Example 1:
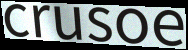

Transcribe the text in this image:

crusoe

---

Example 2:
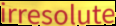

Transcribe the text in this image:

irresolute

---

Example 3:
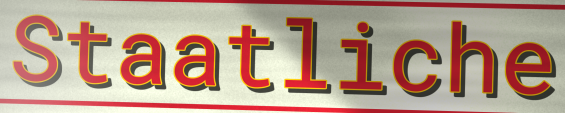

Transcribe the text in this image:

Staatliche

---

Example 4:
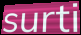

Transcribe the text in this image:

surti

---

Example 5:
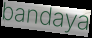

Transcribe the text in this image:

bandaya